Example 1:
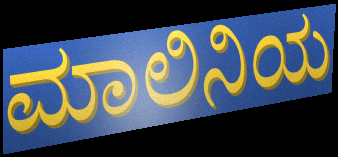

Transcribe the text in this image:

ಮಾಲಿನಿಯ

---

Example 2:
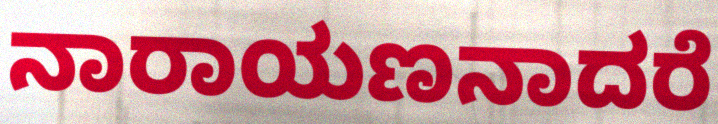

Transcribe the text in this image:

ನಾರಾಯಣನಾದರೆ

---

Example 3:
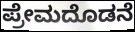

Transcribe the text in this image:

ಪ್ರೇಮದೊಡನೆ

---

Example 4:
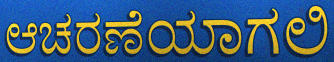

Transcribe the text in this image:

ಆಚರಣೆಯಾಗಲಿ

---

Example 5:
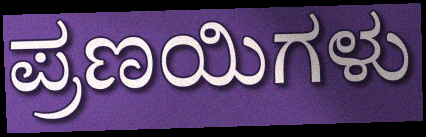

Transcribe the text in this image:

ಪ್ರಣಯಿಗಳು